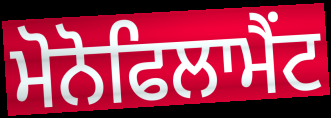
ਮੋਨੋਫਿਲਾਮੈਂਟ